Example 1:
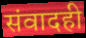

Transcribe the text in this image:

संवादही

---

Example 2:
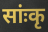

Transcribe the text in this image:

सांःकृ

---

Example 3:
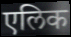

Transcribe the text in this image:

एलिक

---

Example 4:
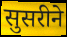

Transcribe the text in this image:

सुसरीने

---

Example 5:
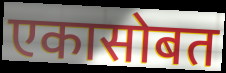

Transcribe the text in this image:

एकासोबत